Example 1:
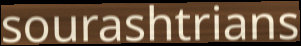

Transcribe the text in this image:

sourashtrians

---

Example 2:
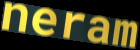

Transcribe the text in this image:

neram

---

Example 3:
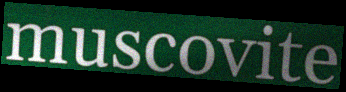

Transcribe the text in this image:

muscovite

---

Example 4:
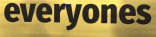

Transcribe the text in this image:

everyones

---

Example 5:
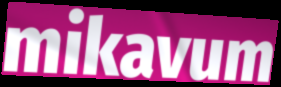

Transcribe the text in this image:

mikavum